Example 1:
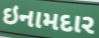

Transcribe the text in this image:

ઇનામદાર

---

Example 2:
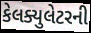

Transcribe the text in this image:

કેલક્યુલેટરની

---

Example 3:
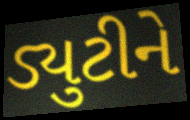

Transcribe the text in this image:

ડ્યુટીને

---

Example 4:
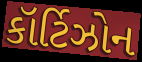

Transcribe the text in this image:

કૉર્ટિઝોન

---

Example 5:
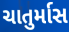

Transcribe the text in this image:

ચાતુર્માસ